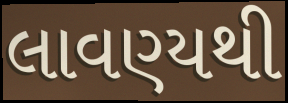
લાવણ્યથી